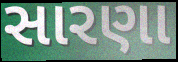
સારણા